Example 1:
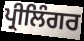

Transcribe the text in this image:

ਪ੍ਰੀਲਿੰਗਰ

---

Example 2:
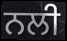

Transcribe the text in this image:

ਨਲੀ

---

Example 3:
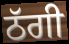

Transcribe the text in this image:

ਠੱਗੀ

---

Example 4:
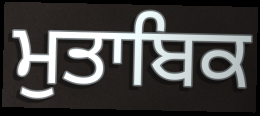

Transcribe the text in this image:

ਮੁਤਾਬਿਕ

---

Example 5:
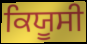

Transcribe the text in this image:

ਕਿਯੂਸੀ